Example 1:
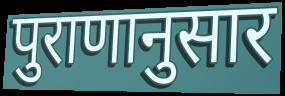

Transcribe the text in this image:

पुराणानुसार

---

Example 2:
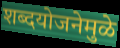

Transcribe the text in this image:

शब्दयोजनेमुळे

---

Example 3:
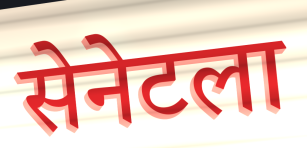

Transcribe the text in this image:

सेनेटला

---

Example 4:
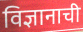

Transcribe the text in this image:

विज्ञानाची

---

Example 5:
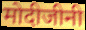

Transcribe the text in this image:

मोदीजीनी